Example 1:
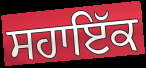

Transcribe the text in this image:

ਸਹਾਇੱਕ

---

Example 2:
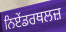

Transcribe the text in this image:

ਨਿਏਂਡਰਥਲਜ਼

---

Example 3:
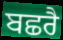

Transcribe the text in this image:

ਬਛਰੈ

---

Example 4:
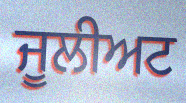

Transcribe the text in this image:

ਜੂਲੀਅਟ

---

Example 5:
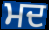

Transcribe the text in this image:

ਮਦ